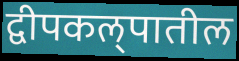
द्वीपकल्पातील